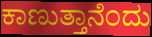
ಕಾಣುತ್ತಾನೆಂದು